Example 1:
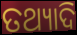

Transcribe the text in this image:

ତଥ୍ୟାଦି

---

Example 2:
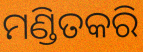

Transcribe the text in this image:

ମଣ୍ଡିତକରି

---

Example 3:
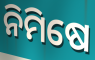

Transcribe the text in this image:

ନିମିଷେ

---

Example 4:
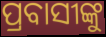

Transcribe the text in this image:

ପ୍ରବାସୀଙ୍କୁ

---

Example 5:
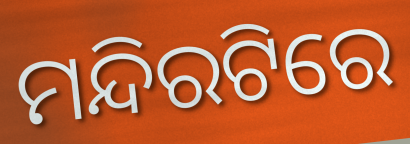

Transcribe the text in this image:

ମନ୍ଦିରଟିରେ